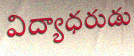
విద్యాధరుడు